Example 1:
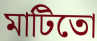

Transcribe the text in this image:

মাটিতো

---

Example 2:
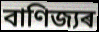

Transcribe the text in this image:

বাণিজ্যৰ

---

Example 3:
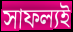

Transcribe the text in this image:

সাফল্যই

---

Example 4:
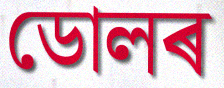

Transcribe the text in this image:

ডোলৰ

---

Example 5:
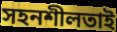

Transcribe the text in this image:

সহনশীলতাই